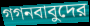
গগনবাবুদের